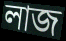
লাজ